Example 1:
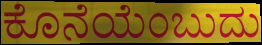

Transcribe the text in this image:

ಕೊನೆಯೆಂಬುದು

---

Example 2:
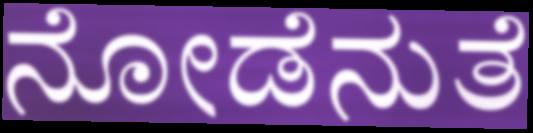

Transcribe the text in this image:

ನೋಡೆನುತೆ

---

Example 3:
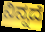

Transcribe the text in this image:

ನಿನ್ನದೆ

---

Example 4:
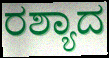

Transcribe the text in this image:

ರಶ್ಯಾದ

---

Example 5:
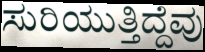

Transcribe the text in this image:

ಸುರಿಯುತ್ತಿದ್ದೆವು